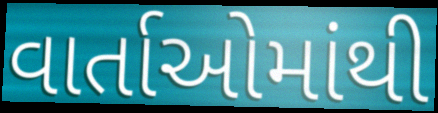
વાર્તાઓમાંથી